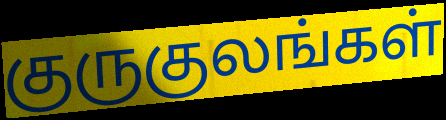
குருகுலங்கள்